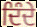
ਦਿੰਦੇ